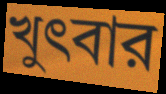
খুৎবার